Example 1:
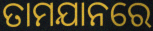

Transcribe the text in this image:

ତାମଯାନରେ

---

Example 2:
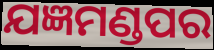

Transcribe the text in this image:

ଯଜ୍ଞମଣ୍ଡପର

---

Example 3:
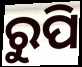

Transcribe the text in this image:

ରୁପି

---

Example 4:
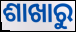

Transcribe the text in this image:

ଶାଖାରୁ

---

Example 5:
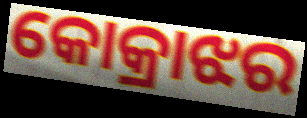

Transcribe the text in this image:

କୋକ୍ରାଝର